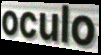
oculo